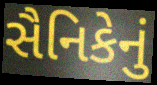
સૈનિકેનું